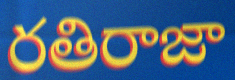
రతిరాజా